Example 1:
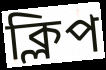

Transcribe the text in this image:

ক্লিপ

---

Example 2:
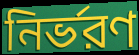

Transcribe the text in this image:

নির্ভরণ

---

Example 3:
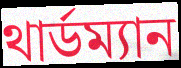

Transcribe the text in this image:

থার্ডম্যান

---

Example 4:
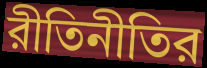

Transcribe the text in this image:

রীতিনীতির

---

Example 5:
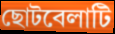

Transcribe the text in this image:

ছোটবেলাটি